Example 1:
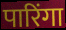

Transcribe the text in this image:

पारिंगा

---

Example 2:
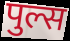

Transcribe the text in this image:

पुल्स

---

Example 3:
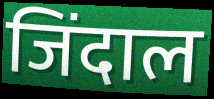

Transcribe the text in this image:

जिंदाल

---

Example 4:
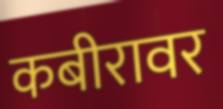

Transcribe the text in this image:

कबीरावर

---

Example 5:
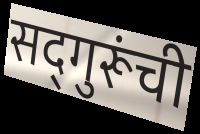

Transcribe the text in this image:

सद्‌गुरूंची